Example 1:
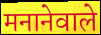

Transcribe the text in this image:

मनानेवाले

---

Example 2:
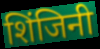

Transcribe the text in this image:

शिंजिनी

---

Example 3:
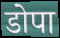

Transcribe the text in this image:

डोपा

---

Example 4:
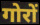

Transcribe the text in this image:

गोरों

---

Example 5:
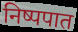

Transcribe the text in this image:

निष्पपात